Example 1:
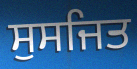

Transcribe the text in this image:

ਸੁਸਜਿਤ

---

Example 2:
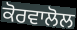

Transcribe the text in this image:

ਕੋਰਵਾਲੋਲ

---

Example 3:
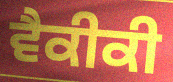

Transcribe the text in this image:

ਵੈਕੀਕੀ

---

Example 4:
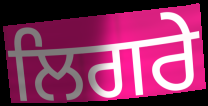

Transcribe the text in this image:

ਲਿਗਰੇ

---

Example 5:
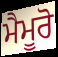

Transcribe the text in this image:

ਮੈਮੂਰੋ